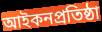
আইকনপ্রতিষ্ঠা